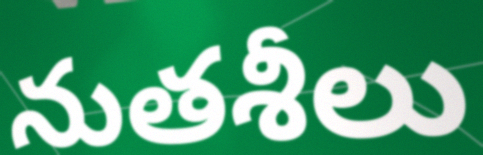
నుతశీలు